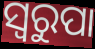
ସ୍ୱରୁପା